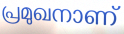
പ്രമുഖനാണ്